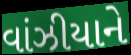
વાંઝીયાને